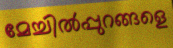
മേച്ചിൽപ്പുറങ്ങളെ